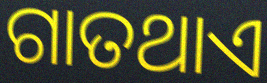
ଗାତଥାଏ